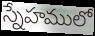
స్నేహములో